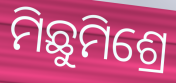
ମିଛୁମିଶ୍ରେ